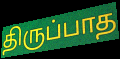
திருப்பாத